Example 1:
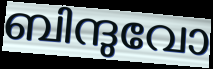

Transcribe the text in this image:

ബിന്ദുവോ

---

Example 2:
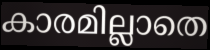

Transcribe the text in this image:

കാരമില്ലാതെ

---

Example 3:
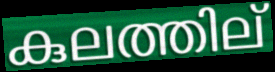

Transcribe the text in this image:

കുലത്തില്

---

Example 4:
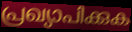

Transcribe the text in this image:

പ്രഖ്യാപിക്കുക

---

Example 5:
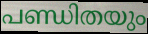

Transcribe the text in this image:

പണ്ഡിതയും